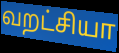
வறட்சியா